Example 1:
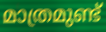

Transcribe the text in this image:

മാത്രമുണ്ട്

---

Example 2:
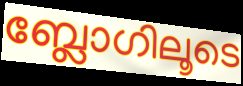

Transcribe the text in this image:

ബ്ലോഗിലൂടെ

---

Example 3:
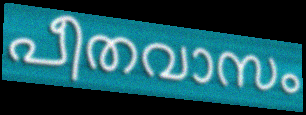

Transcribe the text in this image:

പീതവാസം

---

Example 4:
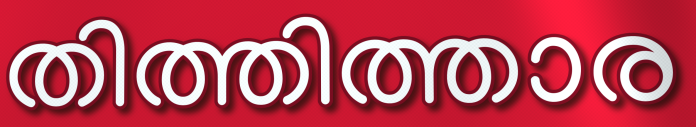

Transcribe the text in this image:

തിത്തിത്താര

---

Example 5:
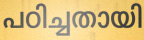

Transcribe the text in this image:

പഠിച്ചതായി